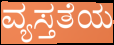
ವ್ಯಸ್ತತೆಯ